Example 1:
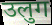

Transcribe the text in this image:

उलुग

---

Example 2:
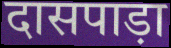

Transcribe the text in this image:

दासपाड़ा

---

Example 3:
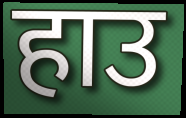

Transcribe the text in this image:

हाउ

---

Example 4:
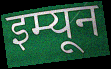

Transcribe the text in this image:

इम्यून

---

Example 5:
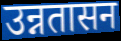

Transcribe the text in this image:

उन्नतासन